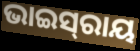
ଭାଇସ୍‍ରାୟ